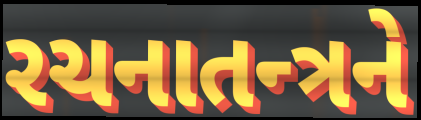
રચનાતન્ત્રને